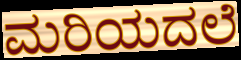
ಮರಿಯದಲೆ